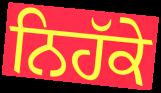
ਨਿਹੱਕੇ